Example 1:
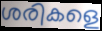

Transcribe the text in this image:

ശരികളെ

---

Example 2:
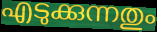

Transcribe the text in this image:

എടുക്കുന്നതും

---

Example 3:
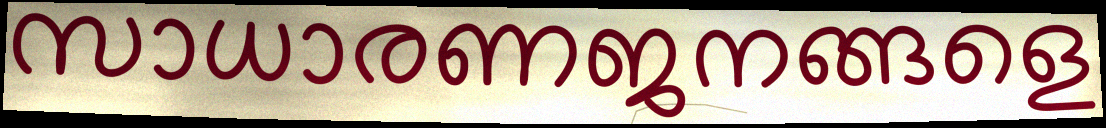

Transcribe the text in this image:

സാധാരണജനങ്ങളെ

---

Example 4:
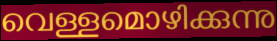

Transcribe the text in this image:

വെള്ളമൊഴിക്കുന്നു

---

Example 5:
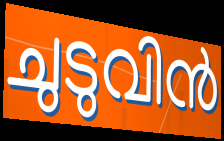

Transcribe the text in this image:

ചുടുവിൻ